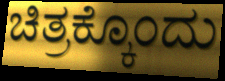
ಚಿತ್ರಕ್ಕೊಂದು